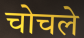
चोचले